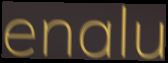
enalu